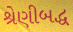
શ્રેણીબદ્ધ